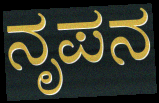
ನೃಪನ